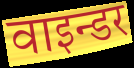
वाइन्डर